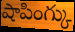
షాపింగ్కు